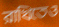
রাখিতেও